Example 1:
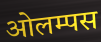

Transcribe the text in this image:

ओलम्पस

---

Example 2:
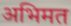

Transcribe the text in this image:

अभिमत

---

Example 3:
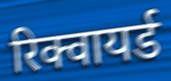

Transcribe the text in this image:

रिक्वायर्ड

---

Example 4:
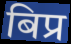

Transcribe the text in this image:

बिप्र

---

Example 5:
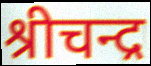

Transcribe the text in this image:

श्रीचन्द्र